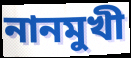
নানমুখী